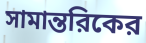
সামান্তরিকের